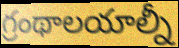
గ్రంథాలయాల్నీ